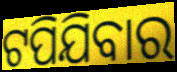
ଟପିଯିବାର